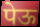
पेऊ